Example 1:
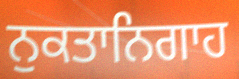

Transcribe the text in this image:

ਨੁਕਤਾਨਿਗਾਹ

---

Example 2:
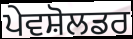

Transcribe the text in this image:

ਪੇਵਸ਼ੋਲਡਰ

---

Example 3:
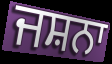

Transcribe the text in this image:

ਜਸ਼ਨਾ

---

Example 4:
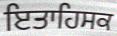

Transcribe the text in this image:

ਇਤਾਹਿਸਕ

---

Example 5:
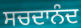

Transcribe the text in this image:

ਸਚਦਾਨੰਦ